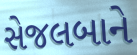
સેજલબાને